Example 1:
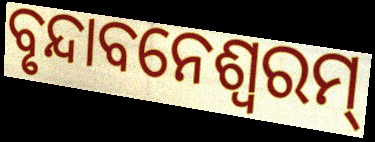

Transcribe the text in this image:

ବୃନ୍ଦାବନେଶ୍ୱରମ୍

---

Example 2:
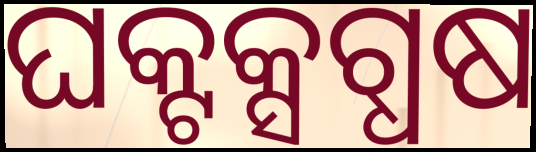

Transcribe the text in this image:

ଘକ୍ଟକ୍ସଗ୍ଧଷ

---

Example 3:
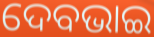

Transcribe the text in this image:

ଦେବଭାଇ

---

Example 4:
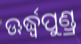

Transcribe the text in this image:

ଊର୍ଦ୍ଧ୍ୱପୁଣ୍ଡ୍ର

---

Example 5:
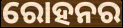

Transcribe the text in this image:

ରୋହନର